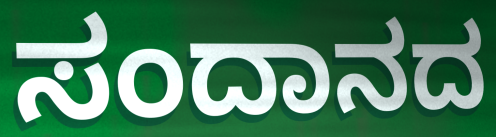
ಸಂದಾನದ